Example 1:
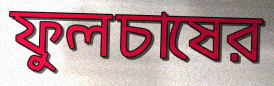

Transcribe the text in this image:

ফুলচাষের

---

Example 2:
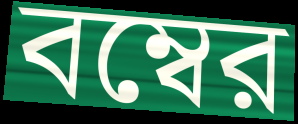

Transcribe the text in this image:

বম্বের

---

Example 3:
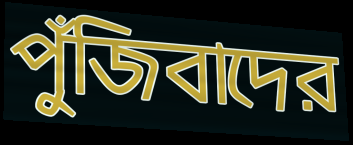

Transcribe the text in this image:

পুঁজিবাদের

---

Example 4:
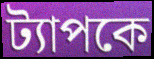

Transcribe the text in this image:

ট্যাপকে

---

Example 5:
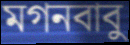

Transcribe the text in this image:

মগনবাবু